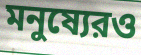
মনুষ্যেরও